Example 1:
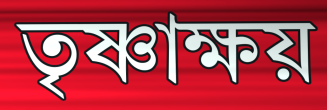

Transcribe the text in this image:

তৃষ্ণাক্ষয়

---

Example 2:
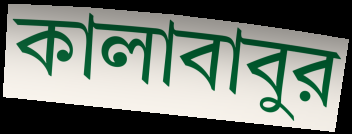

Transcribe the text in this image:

কালাবাবুর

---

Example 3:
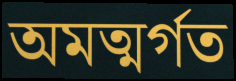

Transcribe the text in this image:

অমত্মর্গত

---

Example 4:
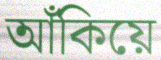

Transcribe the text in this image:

আঁকিয়ে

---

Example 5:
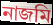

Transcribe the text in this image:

নাজমি